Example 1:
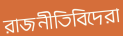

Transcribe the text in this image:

রাজনীতিবিদেরা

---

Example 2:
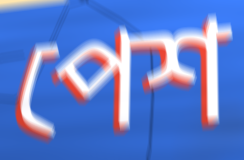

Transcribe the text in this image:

পেশ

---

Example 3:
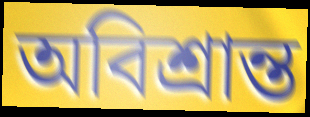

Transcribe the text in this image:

অবিশ্রান্ত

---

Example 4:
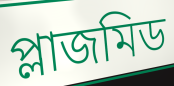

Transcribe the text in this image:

প্লাজমিড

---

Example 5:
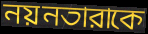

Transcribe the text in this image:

নয়নতারাকে